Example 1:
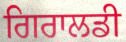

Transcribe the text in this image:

ਗਿਰਾਲਡੀ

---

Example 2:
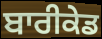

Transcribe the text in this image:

ਬਾਰੀਕੇਡ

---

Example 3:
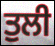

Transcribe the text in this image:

ਤੁਲੀ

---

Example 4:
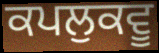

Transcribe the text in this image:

ਕਪਲੁਕਵੂ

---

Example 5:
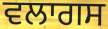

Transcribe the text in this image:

ਵਲਾਗਸ